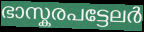
ഭാസ്കരപട്ടേലർ